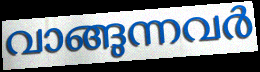
വാങ്ങുന്നവർ